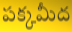
పక్కమీద